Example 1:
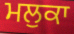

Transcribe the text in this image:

ਮਲੁਕਾ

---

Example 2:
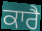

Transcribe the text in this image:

ਕਾਰੈ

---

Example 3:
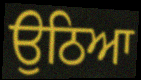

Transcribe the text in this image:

ਉਠਿਆ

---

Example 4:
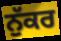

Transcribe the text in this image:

ਨੁੱਕਰ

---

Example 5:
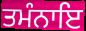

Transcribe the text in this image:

ਤਮੰਨਾਇ